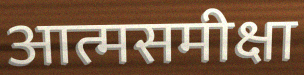
आत्मसमीक्षा